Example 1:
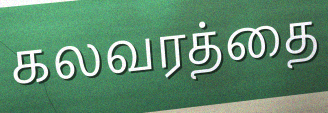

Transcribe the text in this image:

கலவரத்தை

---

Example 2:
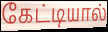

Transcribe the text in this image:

கேட்டியால்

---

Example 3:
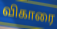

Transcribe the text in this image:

விகாரை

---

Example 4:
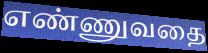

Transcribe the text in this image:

எண்ணுவதை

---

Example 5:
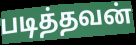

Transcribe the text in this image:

படித்தவன்